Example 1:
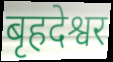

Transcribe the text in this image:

बृहदेश्वर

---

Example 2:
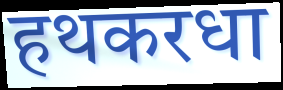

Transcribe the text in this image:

हथकरधा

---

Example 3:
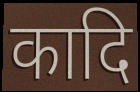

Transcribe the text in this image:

कादि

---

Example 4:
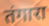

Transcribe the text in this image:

तंगारा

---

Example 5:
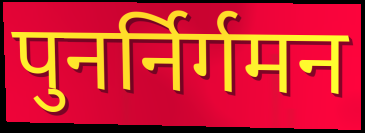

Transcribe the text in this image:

पुनर्निर्गमन